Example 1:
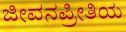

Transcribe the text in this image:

ಜೀವನಪ್ರೀತಿಯ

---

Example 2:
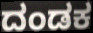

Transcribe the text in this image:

ದಂಡಕ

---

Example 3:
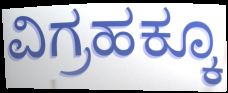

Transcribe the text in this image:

ವಿಗ್ರಹಕ್ಕೂ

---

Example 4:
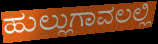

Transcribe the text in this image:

ಹುಲ್ಲುಗಾವಲಲ್ಲಿ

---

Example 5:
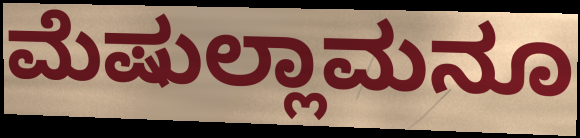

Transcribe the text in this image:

ಮೆಷುಲ್ಲಾಮನೂ